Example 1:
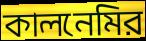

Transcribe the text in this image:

কালনেমির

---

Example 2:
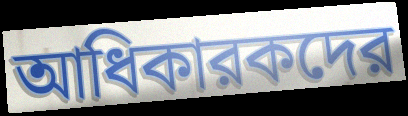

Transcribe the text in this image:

আধিকারকদের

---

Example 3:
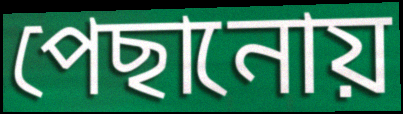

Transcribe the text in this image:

পেছানোয়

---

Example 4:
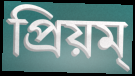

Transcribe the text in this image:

প্রিয়ম্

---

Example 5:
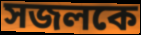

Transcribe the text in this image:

সজলকে